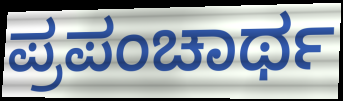
ಪ್ರಪಂಚಾರ್ಥ